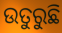
ଉତୁରୁଛି